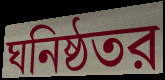
ঘনিষ্ঠতর